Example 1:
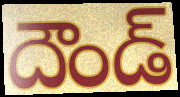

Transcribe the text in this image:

దౌండ్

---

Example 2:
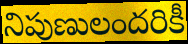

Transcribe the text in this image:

నిపుణులందరికీ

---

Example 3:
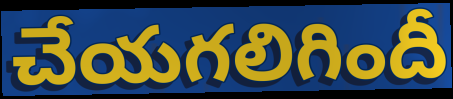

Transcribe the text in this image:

చేయగలిగిందీ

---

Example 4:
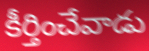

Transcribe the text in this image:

కీర్తించేవాడు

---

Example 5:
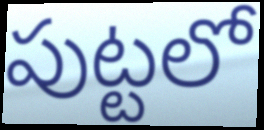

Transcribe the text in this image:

పుట్టలో